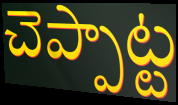
చెప్పాట్ట